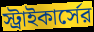
স্ট্রাইকার্সের